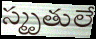
స్మృతులే